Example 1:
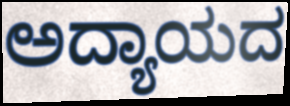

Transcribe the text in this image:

ಅದ್ಯಾಯದ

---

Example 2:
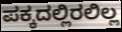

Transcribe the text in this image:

ಪಕ್ಕದಲ್ಲಿರಲಿಲ್ಲ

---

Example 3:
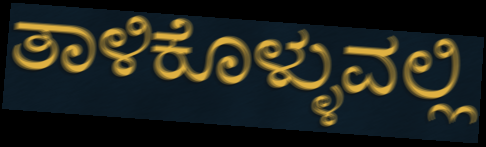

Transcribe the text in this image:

ತಾಳಿಕೊಳ್ಳುವಲ್ಲಿ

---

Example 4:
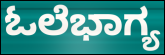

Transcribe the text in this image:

ಓಲೆಭಾಗ್ಯ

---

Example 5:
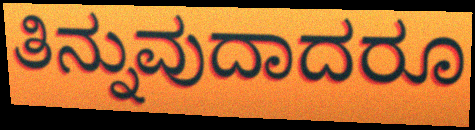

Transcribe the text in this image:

ತಿನ್ನುವುದಾದರೂ